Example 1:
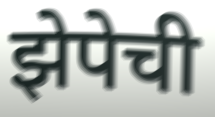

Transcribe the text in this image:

झेपेची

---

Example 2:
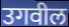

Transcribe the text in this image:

उगवील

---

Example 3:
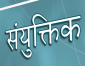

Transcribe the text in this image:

संयुक्तिक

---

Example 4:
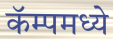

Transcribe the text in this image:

कॅम्पमध्ये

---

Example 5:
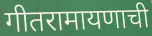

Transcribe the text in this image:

गीतरामायणाची